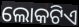
ଲୋକଟିଏ